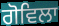
ਗੋਵਿਲਾ